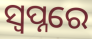
ସ୍ୱପ୍ନରେ